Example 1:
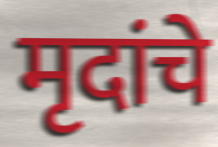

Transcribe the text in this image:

मृदांचे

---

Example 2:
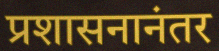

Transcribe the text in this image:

प्रशासनानंतर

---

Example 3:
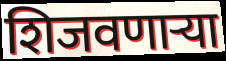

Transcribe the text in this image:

शिजवणाऱ्या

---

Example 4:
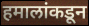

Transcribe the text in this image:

हमालांकडून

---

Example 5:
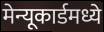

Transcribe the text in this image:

मेन्यूकार्डमध्ये